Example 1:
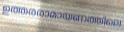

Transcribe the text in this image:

ഉത്തരരാമായണത്തിലെ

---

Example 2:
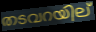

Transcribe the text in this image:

തടവറയില്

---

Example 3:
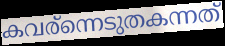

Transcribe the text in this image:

കവര്ന്നെടുതകന്നത്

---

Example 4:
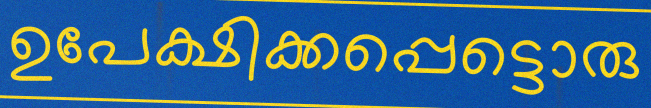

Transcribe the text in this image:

ഉപേക്ഷിക്കപ്പെട്ടൊരു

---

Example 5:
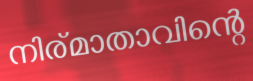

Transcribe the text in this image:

നിര്മാതാവിന്റെ